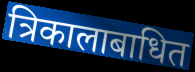
त्रिकालाबाधित